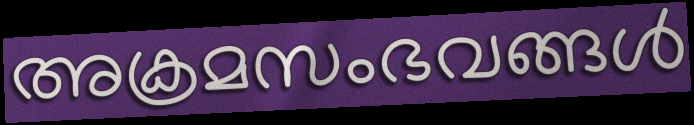
അക്രമസംഭവങ്ങൾ